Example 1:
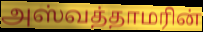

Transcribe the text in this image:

அஸ்வத்தாமரின்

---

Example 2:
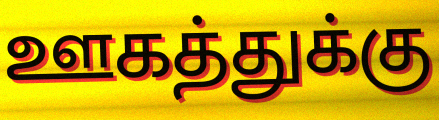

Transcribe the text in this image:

ஊகத்துக்கு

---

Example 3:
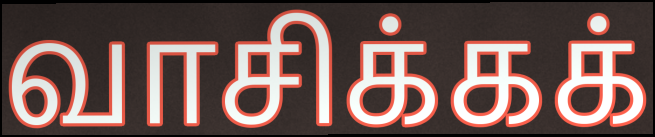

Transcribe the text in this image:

வாசிக்கக்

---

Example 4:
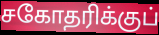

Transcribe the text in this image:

சகோதரிக்குப்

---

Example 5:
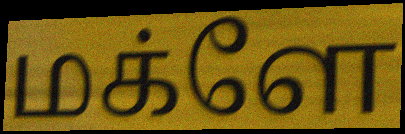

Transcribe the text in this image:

மக்ளே